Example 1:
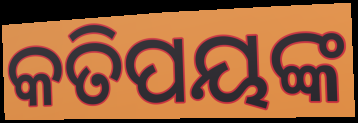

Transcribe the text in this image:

କତିପୟଙ୍କ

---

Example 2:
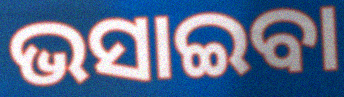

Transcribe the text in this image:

ଭସାଇବା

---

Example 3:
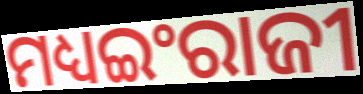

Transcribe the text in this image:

ମଧ୍ୟଇଂରାଜୀ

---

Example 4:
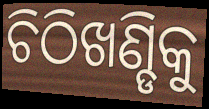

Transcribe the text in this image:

ଚିଠିଖଣ୍ଡିକୁ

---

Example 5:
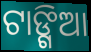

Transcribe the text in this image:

ଟାଙ୍ଗିଆ